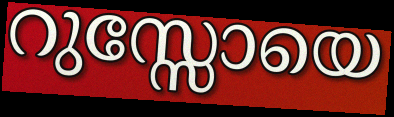
റുസ്സോയെ